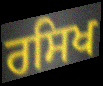
ਰਸਿਖ